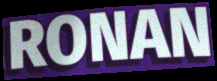
RONAN